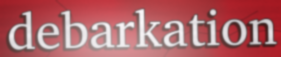
debarkation